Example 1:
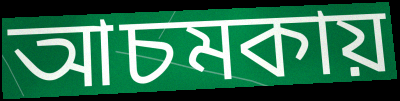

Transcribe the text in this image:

আচমকায়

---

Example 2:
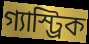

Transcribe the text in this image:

গ্যাস্ট্রিক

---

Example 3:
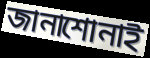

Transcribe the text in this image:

জানাশোনাই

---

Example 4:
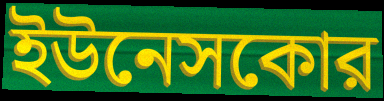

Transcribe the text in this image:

ইউনেসকোর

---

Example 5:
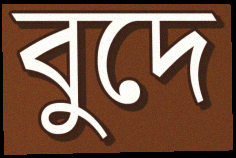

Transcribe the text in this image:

বুদে